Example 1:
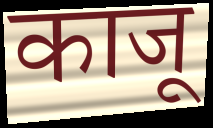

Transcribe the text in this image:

काजू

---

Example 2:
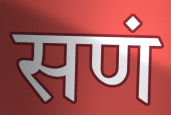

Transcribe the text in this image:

सणं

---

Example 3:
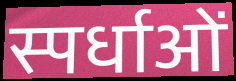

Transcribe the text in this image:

स्पर्धाओं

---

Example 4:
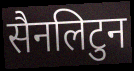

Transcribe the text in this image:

सैनलिटुन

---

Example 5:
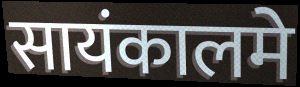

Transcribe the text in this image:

सायंकालमे